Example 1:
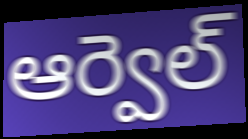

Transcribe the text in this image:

ఆర్వెల్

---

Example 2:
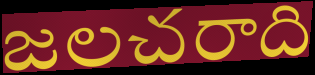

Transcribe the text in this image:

జలచరాది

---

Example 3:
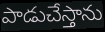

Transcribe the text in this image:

పాడుచేస్తాను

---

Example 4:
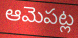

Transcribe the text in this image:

ఆమెపట్ల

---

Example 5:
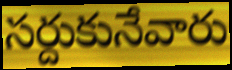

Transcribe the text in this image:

సర్దుకునేవారు